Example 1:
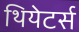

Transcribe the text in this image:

थियेटर्स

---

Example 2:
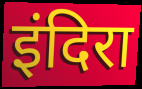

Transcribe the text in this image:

इंदिरा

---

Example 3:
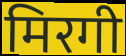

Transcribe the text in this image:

मिरगी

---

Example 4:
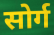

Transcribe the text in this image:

सोर्ग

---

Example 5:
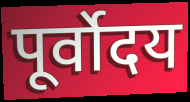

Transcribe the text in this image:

पूर्वोदय